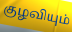
குழவியும்